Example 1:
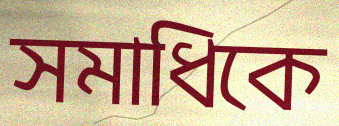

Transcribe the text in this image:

সমাধিকে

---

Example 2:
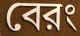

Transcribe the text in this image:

বেরং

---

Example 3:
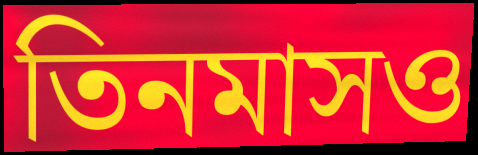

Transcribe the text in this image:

তিনমাসও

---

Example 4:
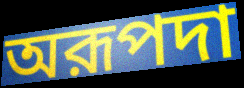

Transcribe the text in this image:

অরূপদা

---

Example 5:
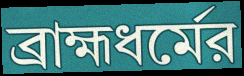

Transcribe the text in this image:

ব্রাহ্মধর্মের